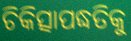
ଚିକିତ୍ସାପଦ୍ଧତିକୁ